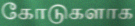
கோடுகளாக